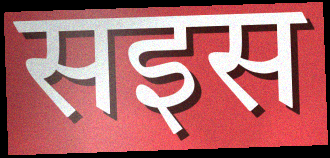
सइस